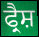
ਫ੍ਰੈਸ਼